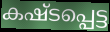
കഷ്ടപ്പെട്ട